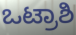
ಒಟ್ರಾಶಿ